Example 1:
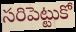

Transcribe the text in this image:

సరిపెట్టుకో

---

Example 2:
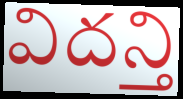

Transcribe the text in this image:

విదన్తి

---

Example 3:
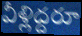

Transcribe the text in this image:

వీళ్లిద్దరూ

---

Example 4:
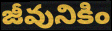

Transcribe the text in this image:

జీవునికిం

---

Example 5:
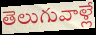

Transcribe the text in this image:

తెలుగువాళ్లే